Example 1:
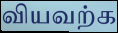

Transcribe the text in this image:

வியவற்க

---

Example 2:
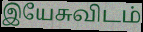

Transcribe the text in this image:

இயேசுவிடம்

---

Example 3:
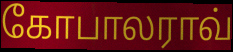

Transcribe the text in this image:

கோபாலராவ்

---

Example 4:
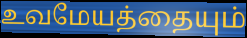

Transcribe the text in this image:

உவமேயத்தையும்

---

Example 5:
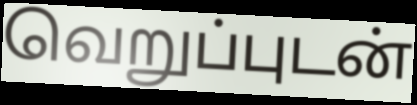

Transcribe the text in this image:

வெறுப்புடன்